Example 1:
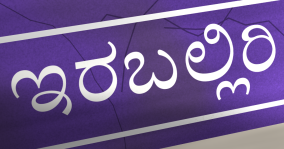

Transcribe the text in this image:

ಇರಬಲ್ಲಿರಿ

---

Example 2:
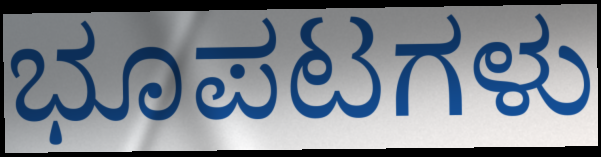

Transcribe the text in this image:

ಭೂಪಟಗಳು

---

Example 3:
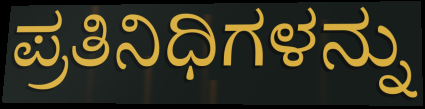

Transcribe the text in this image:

ಪ್ರತಿನಿಧಿಗಳನ್ನು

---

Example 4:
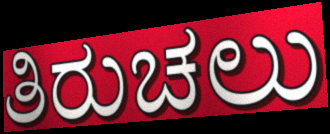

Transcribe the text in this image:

ತಿರುಚಲು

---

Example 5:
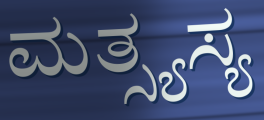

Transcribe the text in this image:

ಮತ್ಸ್ಯಸ್ಯ